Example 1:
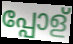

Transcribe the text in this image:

പ്പോള്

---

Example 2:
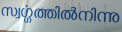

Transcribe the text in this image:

സ്വൎഗ്ഗത്തിൽനിന്നു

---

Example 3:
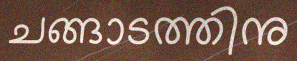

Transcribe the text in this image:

ചങ്ങാടത്തിനു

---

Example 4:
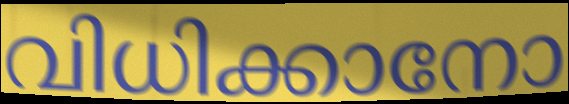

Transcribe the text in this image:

വിധിക്കാനോ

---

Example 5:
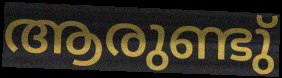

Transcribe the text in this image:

ആരുണ്ടു്